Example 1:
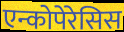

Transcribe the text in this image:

एन्कोपेरेसिस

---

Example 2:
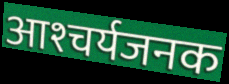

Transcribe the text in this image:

आश्चर्यजनक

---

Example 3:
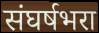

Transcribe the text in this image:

संघर्षभरा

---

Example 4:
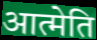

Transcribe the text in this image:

आत्मेति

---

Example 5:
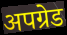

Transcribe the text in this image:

अपग्रेड